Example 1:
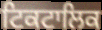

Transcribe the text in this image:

ਟਿਕਟਾਲਿਕ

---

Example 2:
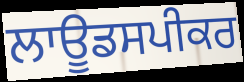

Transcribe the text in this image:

ਲਾਊਡਸਪੀਕਰ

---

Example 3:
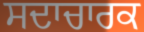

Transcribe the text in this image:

ਸਦਾਚਾਰਕ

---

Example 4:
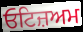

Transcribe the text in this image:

ਓਟਿਜ਼ਅਮ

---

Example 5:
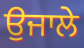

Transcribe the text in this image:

ਉਜਾਲੇ